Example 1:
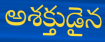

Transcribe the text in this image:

అశక్తుడైన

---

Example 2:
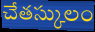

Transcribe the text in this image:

చేతస్కులం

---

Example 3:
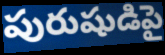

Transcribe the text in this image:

పురుషుడిపై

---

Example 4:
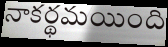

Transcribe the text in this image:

నాకర్థమయింది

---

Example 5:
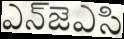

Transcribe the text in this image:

ఎన్‌జెఎసి